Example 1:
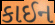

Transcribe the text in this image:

કાઈન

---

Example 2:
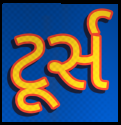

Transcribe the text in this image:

ટૂર્સ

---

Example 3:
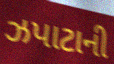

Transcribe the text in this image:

ઝપાટાની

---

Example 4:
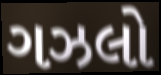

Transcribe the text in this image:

ગઝલો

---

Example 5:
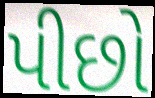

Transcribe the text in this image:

પીછો